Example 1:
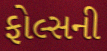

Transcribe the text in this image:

ફોલ્સની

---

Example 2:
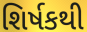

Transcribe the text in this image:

શિર્ષકથી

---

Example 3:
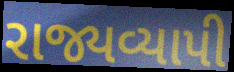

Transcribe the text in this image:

રાજ્યવ્યાપી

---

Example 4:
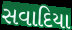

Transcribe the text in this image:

સવાદિયા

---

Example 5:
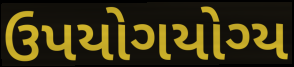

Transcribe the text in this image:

ઉપયોગયોગ્ય